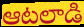
ఆటలాడి